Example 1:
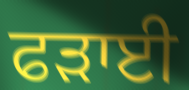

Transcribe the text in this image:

ਫੜਾਈ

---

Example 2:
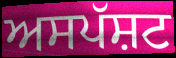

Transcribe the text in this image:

ਅਸਪੱਸ਼ਟ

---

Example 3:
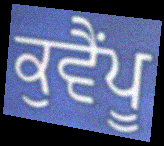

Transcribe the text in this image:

ਕੁਵੈਂਪੂ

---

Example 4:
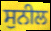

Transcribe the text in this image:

ਸੁਨੀਲ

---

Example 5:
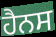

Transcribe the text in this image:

ਹੈਨਸ